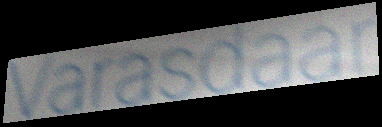
Varasdaar